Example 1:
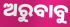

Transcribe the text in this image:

ଅରୁବାବୁ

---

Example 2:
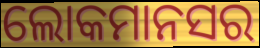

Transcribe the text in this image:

ଲୋକମାନସର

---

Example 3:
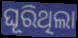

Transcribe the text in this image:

ଘୂରିଥିଲା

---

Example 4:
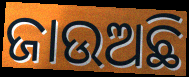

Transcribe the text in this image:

ଜାଉଅଛି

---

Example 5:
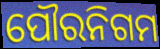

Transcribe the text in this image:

ପୌରନିଗମ